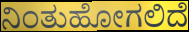
ನಿಂತುಹೋಗಲಿದೆ